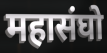
महासंघो